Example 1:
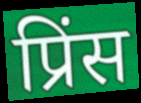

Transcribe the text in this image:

प्रिंस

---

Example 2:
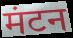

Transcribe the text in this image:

मंटन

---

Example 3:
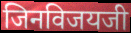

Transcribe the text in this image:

जिनविजयजी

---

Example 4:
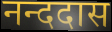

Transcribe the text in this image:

नन्ददास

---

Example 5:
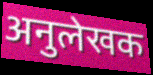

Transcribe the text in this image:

अनुलेखक